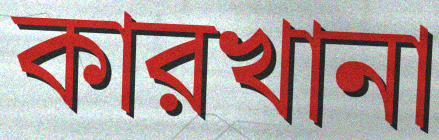
কারখানা